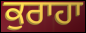
ਕੁਰਾਹਾ